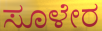
ಸೂಳೇರ